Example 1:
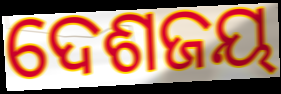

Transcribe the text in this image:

ଦେଶଜୟ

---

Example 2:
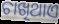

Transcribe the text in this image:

ଚାଖିଥାଏ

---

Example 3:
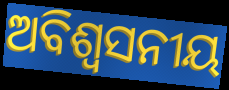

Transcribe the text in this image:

ଅବିଶ୍ବସନୀୟ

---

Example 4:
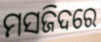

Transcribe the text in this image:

ମସଜିଦରେ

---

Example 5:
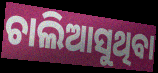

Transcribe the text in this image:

ଚାଲିଆସୁଥିବା